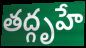
తద్గృహే